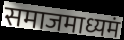
समाजमाध्यमं